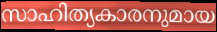
സാഹിത്യകാരനുമായ